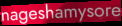
nageshamysore